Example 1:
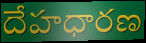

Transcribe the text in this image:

దేహధారణ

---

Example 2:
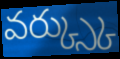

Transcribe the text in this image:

వర్క్స్కు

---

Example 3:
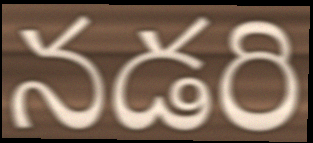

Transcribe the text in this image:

నడరి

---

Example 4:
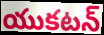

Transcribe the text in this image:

యుకటన్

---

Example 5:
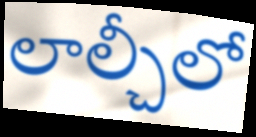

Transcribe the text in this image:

లాల్చీలో